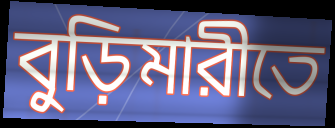
বুড়িমারীতে